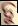
ଡୁ